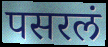
पसरलं